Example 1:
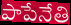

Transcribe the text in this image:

పాపేనేతి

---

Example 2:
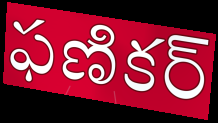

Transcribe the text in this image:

ఫణికర్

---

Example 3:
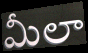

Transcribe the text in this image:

మీలా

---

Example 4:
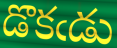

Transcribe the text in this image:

డొకఁడు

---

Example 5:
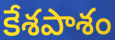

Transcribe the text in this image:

కేశపాశం